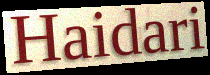
Haidari